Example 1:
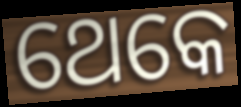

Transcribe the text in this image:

ଥେକେ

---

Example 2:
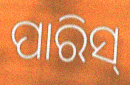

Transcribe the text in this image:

ପାରିସ୍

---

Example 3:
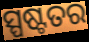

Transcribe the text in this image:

ସ୍ପଷ୍ଟତର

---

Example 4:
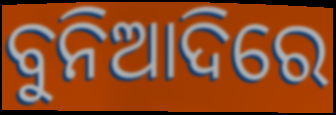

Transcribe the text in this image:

ବୁନିଆଦିରେ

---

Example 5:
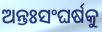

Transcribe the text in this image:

ଅନ୍ତଃସଂଘର୍ଷକୁ